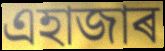
এহাজাৰ